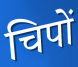
चिपों